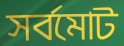
সর্বমোট